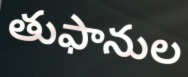
తుఫానుల